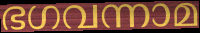
ഭഗവന്നാമ